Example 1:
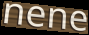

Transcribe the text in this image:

nene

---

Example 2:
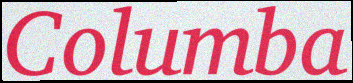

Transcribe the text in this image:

Columba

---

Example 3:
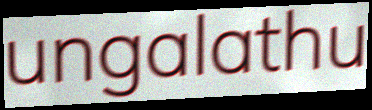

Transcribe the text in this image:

ungalathu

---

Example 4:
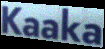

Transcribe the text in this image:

Kaaka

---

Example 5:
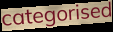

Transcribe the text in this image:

categorised